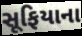
સૂફિયાના